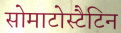
सोमाटोस्टैटिन